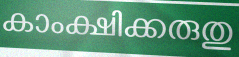
കാംക്ഷിക്കരുതു